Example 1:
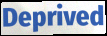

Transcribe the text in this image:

Deprived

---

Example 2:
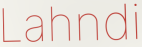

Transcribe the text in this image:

Lahndi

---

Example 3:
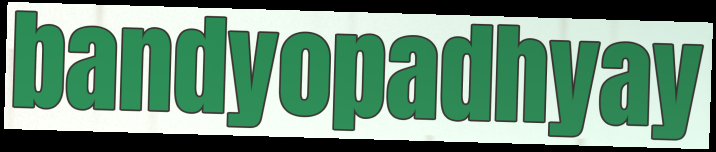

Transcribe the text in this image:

bandyopadhyay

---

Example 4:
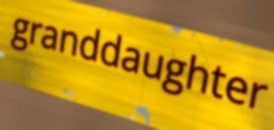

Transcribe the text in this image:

granddaughter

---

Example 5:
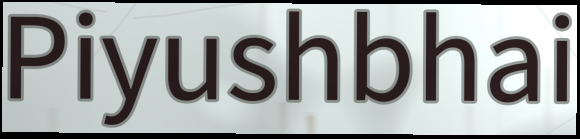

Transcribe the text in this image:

Piyushbhai